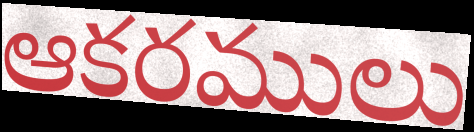
ఆకరములు